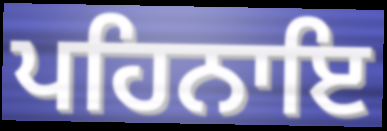
ਪਹਿਨਾਇ